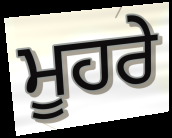
ਮੂਹਰੇ